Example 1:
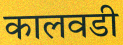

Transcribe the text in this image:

कालवडी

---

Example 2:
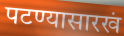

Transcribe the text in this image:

पटण्यासारखं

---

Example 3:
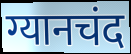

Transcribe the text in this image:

ग्यानचंद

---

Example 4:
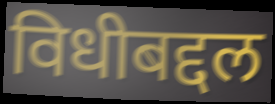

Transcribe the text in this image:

विधीबद्दल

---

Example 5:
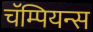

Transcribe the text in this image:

चॅम्पियन्स